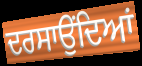
ਦਰਸਾਉਂਦਿਆਂ